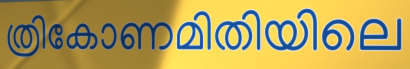
ത്രികോണമിതിയിലെ